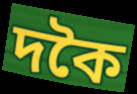
দকৈ